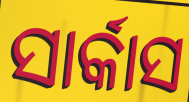
ସାର୍କାସ